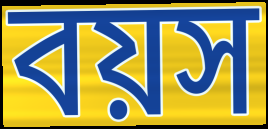
বয়স